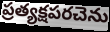
ప్రత్యక్షపరచెను